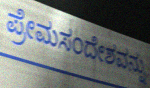
ಪ್ರೇಮಸಂದೇಶವನ್ನು